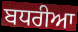
ਬਧਰੀਆ